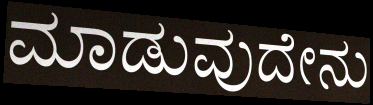
ಮಾಡುವುದೇನು